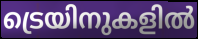
ട്രെയിനുകളിൽ